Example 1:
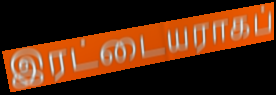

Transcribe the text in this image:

இரட்டையராகப்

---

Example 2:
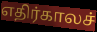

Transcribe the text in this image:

எதிர்காலச்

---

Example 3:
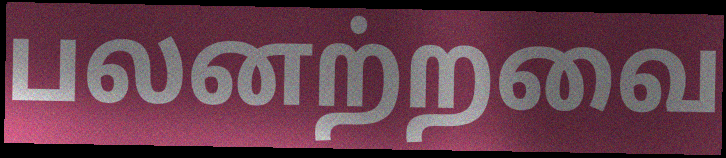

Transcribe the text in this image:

பலனற்றவை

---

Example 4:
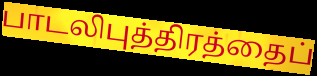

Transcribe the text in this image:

பாடலிபுத்திரத்தைப்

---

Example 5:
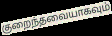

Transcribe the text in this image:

குறைந்தவையாகவும்